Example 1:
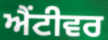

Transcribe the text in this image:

ਐਂਟੀਵਰ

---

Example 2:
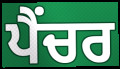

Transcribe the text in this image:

ਪੈਂਚਰ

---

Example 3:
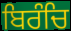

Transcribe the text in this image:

ਬਿਰੰਚਿ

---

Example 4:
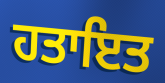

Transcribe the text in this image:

ਹਤਾਇਤ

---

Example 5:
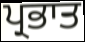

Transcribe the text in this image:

ਪ੍ਰਭਾਤ